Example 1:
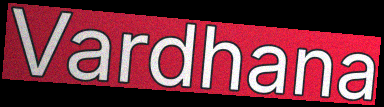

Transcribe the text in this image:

Vardhana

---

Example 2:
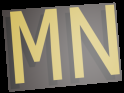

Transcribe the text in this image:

MN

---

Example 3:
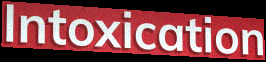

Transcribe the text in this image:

Intoxication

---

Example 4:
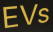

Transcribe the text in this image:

EVs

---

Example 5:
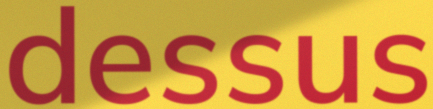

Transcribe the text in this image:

dessus